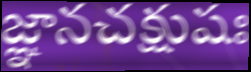
జ్ఞానచక్షుషః